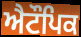
ਐਟੌਪਿਕ